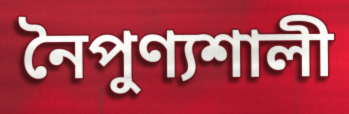
নৈপুণ্যশালী